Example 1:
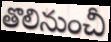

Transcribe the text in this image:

తొలినుంచీ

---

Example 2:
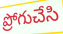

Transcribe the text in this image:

ప్రోగుచేసి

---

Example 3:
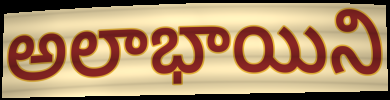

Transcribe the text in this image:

అలాభాయిని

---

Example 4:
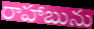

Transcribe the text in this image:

రాహాబును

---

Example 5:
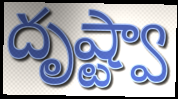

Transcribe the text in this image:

దృష్ట్వా